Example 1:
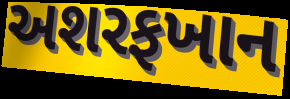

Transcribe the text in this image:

અશરફખાન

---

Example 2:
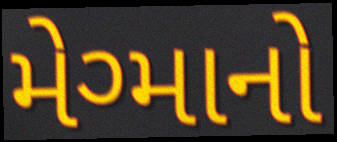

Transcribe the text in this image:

મેગ્માનો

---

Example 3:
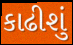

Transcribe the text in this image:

કાઢીશું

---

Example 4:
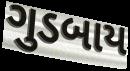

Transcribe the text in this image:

ગુડબાય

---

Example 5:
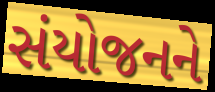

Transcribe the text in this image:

સંયોજનને